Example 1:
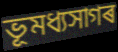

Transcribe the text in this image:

ভূমধ্যসাগৰ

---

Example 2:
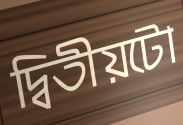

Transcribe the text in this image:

দ্বিতীয়টো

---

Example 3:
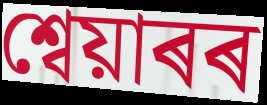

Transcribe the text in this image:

শ্বেয়াৰৰ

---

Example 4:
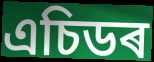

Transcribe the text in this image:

এচিডৰ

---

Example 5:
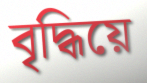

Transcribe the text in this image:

বৃদ্ধিয়ে